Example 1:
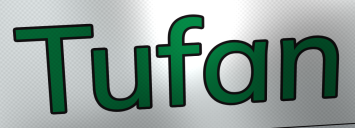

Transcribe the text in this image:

Tufan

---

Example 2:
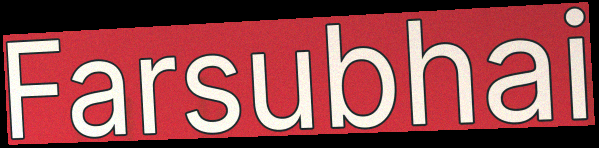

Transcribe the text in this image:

Farsubhai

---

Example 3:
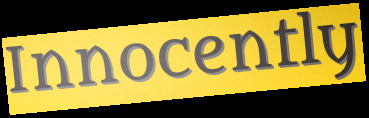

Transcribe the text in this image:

Innocently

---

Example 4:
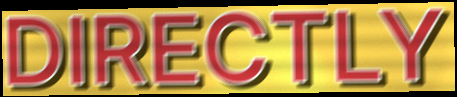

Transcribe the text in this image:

DIRECTLY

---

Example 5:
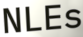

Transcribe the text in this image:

NLEs